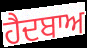
ਹੈਦਬਾਅ